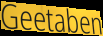
Geetaben